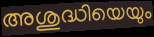
അശുദ്ധിയെയും